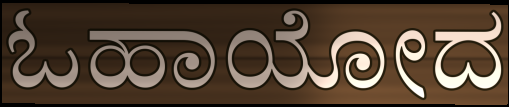
ಓಹಾಯೋದ